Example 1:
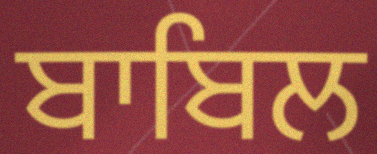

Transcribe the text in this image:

ਬਾਬਿਲ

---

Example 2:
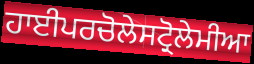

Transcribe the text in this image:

ਹਾਈਪਰਚੋਲੇਸਟ੍ਰੋਲੇਮੀਆ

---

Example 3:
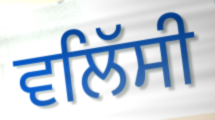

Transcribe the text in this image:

ਵਲਿੱਸੀ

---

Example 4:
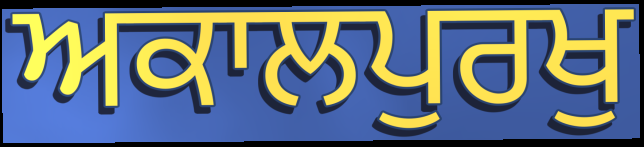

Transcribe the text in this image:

ਅਕਾਲਪੁਰਖੁ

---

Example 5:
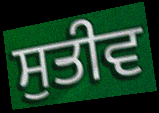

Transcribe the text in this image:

ਸੁਤੀਵ